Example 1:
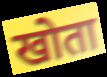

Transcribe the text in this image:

खोता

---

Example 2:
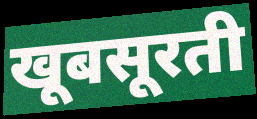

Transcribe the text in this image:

खूबसूरती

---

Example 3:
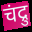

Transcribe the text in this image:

चंद्रु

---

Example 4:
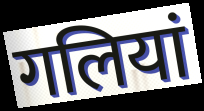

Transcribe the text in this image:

गलियां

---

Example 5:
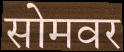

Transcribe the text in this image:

सोमवर